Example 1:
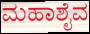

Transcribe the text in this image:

ಮಹಾಶೈವ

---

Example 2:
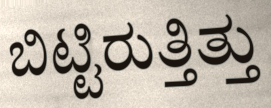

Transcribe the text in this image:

ಬಿಟ್ಟಿರುತ್ತಿತ್ತು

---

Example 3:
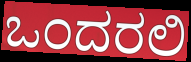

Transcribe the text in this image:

ಒಂದರಲಿ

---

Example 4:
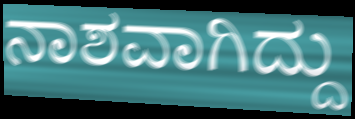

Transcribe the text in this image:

ನಾಶವಾಗಿದ್ದು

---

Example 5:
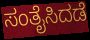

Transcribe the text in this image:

ಸಂತೈಸಿದಡೆ